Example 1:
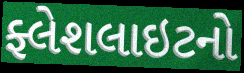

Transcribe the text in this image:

ફ્લેશલાઇટનો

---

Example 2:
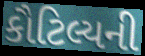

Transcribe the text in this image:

કૌટિલ્યની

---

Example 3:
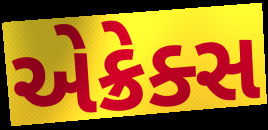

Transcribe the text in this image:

એક્રેક્સ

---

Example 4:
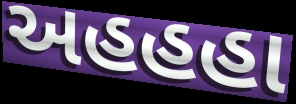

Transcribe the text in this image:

અહહહા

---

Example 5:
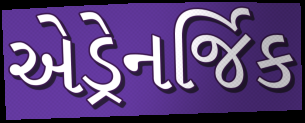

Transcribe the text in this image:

એડ્રેનર્જિક